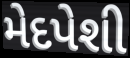
મેદપેશી